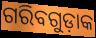
ଗରିବଗୁଡ଼ାକ